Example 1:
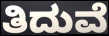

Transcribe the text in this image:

ತಿದುವೆ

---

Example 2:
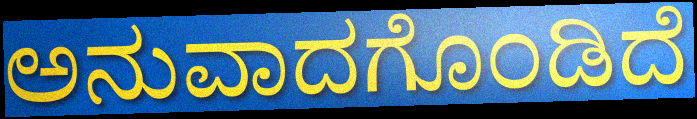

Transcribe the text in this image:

ಅನುವಾದಗೊಂಡಿದೆ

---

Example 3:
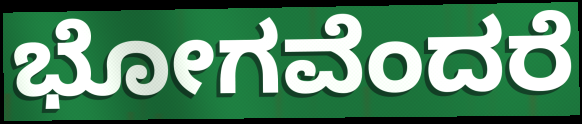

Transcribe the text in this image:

ಭೋಗವೆಂದರೆ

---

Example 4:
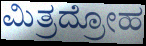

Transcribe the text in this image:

ಮಿತ್ರದ್ರೋಹ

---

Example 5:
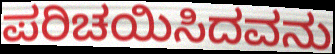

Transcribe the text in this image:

ಪರಿಚಯಿಸಿದವನು